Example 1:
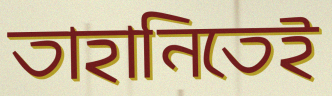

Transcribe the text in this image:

তাহানিতেই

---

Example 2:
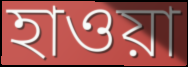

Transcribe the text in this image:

হাওয়া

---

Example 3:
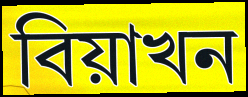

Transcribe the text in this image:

বিয়াখন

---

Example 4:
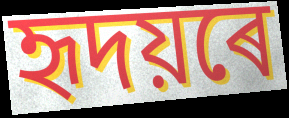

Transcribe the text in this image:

হৃদয়ৰে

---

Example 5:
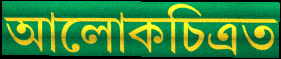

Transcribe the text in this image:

আলোকচিত্ৰত